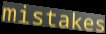
mistakes